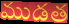
ముడత